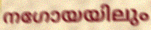
നഗോയയിലും